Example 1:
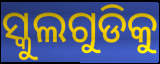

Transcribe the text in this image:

ସ୍କୁଲଗୁଡିକୁ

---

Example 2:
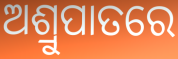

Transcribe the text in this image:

ଅଶ୍ରୁପାତରେ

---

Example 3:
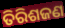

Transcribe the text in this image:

ତିରିଶଜଣ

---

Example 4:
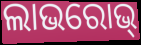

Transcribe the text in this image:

ଲାଭରୋଭ୍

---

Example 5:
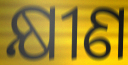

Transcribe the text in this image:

କ୍ଷୀଣ